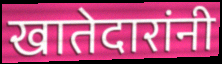
खातेदारांनी